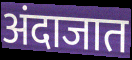
अंदाजात